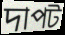
দাপট